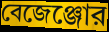
বেজেঞ্জোর